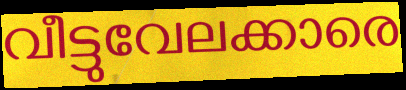
വീട്ടുവേലക്കാരെ